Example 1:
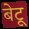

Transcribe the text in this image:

बेटू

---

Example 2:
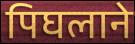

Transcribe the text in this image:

पिघलाने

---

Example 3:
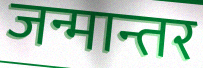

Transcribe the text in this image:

जन्मान्तर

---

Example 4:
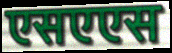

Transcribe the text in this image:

एसएएस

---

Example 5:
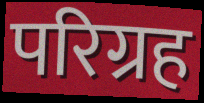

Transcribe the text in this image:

परिग्रह